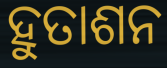
ହୁତାଶନ